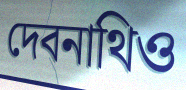
দেবনাথিও